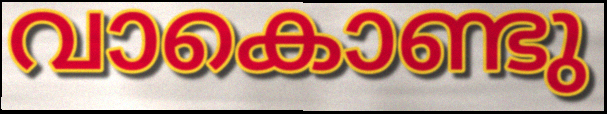
വാകൊണ്ടു